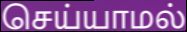
செய்யாமல்